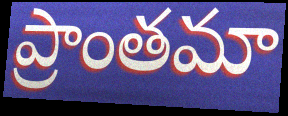
ప్రాంతమా